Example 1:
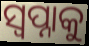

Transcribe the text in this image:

ସ୍ୱପ୍ନାକୁ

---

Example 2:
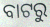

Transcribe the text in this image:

ବାଟରୁ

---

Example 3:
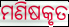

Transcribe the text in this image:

ମଣିଷକୃତ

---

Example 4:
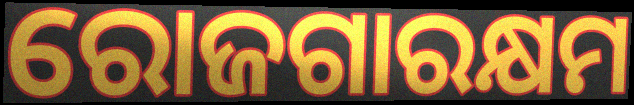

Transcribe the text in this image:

ରୋଜଗାରକ୍ଷମ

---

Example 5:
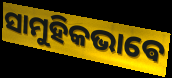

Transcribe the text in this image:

ସାମୁହିକଭାଵେ